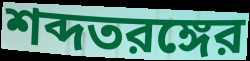
শব্দতরঙ্গের